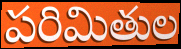
పరిమితుల